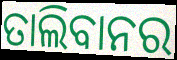
ତାଲିବାନର